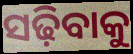
ସଢ଼ିବାକୁ